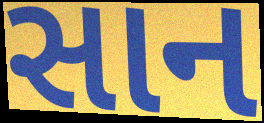
સાન